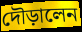
দৌড়ালেন